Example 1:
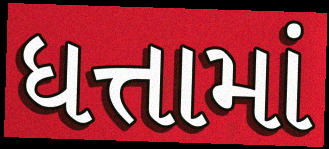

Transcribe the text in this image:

ધત્તામાં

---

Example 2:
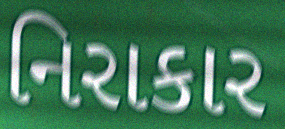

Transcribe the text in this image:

નિરાકાર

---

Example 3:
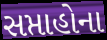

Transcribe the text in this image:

સપ્તાહોના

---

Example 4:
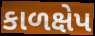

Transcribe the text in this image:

કાળક્ષેપ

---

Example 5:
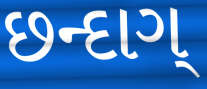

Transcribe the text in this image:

છન્દાગ્